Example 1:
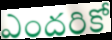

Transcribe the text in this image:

ఎందరికో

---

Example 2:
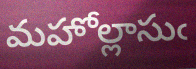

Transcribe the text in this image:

మహోల్లాసుఁ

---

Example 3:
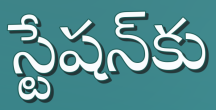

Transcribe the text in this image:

స్టేషన్‍కు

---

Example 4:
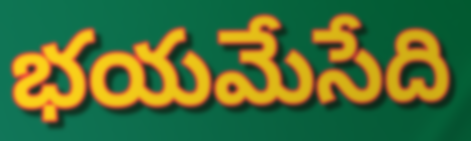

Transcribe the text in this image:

భయమేసేది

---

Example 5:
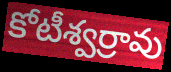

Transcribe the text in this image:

కోటీశ్వర్రావు